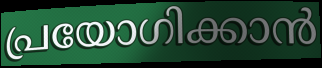
പ്രയോഗിക്കാൻ